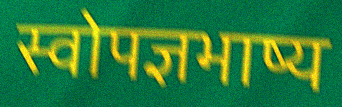
स्वोपज्ञभाष्य